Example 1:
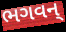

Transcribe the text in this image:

ભગવન્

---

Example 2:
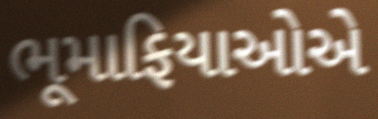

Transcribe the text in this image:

ભૂમાફિયાઓએ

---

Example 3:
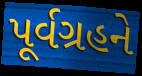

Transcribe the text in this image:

પૂર્વગ્રહને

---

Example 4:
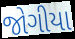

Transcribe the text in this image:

જોગીયા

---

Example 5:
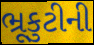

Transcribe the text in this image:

ભ્રૂકુટીની